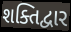
શક્તિદ્વાર